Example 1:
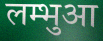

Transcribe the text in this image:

लम्भुआ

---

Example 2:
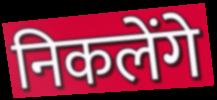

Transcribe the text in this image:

निकलेंगे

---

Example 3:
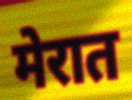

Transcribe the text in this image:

मेरात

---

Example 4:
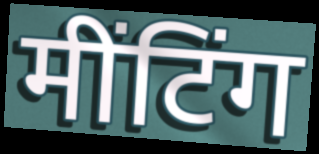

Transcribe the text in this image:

मींटिंग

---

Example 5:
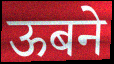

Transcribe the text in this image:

ऊबने